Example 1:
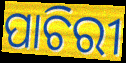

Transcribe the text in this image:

ପାଚିରୀ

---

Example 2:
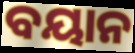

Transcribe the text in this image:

ବୟାନ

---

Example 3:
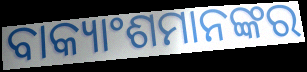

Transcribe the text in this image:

ବାକ୍ୟାଂଶମାନଙ୍କର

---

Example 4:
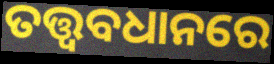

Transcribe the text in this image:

ତତ୍ତ୍ଵବଧାନରେ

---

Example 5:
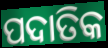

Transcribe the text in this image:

ପଦାତିକ